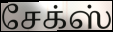
சேக்ஸ்